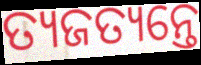
ତ୍ୟଜତ୍ୟନ୍ତେ